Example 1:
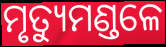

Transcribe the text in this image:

ମୃତ୍ୟୁମଣ୍ଡଳେ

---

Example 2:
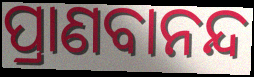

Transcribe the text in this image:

ପ୍ରାଣବାନନ୍ଦ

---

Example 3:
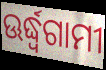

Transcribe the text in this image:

ଊର୍ଦ୍ଧ୍ଵଗାମୀ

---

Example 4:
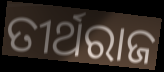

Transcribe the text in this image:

ତୀର୍ଥରାଜ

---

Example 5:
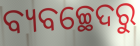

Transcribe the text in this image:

ବ୍ୟବଚ୍ଛେଦରୁ